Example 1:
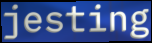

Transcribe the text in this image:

jesting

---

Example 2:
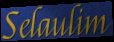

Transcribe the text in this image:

Selaulim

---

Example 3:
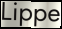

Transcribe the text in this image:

Lippe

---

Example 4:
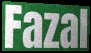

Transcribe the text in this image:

Fazal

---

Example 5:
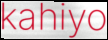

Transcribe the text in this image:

kahiyo